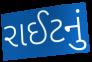
રાઈટનું